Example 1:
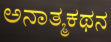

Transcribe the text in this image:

ಅನಾತ್ಮಕಥನ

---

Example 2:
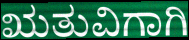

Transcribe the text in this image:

ಋತುವಿಗಾಗಿ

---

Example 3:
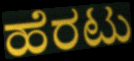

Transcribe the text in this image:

ಹೆರಟು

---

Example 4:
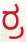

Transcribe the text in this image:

ರ್ರ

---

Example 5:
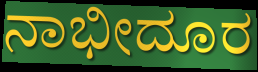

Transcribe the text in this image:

ನಾಭೀದೂರ